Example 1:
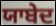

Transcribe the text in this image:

ਯਾਬੇਦ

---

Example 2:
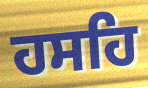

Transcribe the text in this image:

ਹਸਹਿ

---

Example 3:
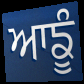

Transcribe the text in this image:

ਆਙੂੰ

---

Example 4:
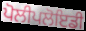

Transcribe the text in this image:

ਪੋਲੀਪਲੋਇਡੀ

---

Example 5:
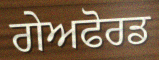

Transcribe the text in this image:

ਗੇਅਫੋਰਡ